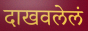
दाखवलेलं